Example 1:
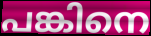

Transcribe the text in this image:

പങ്കിനെ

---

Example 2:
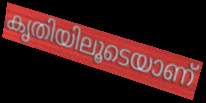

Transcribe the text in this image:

കൃതിയിലൂടെയാണ്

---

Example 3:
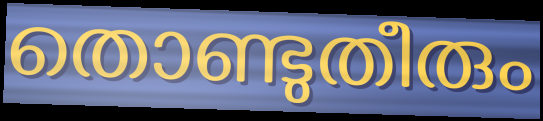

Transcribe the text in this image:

തൊണ്ടുതീരും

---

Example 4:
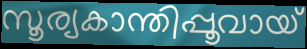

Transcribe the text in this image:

സൂര്യകാന്തിപ്പൂവായ്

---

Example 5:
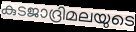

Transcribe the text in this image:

കുടജാദ്രിമലയുടെ